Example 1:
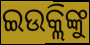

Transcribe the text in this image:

ଇଉକ୍ଲିଙ୍କୁ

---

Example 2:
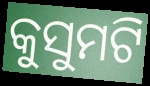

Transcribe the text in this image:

କୁସୁମଟି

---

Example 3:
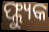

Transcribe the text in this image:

ଫ୍ଲ୍ୟୁକ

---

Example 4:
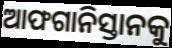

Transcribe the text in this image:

ଆଫଗାନିସ୍ତାନକୁ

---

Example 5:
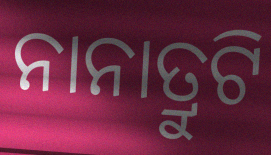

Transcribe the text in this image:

ନାନାତ୍ରୁଟି